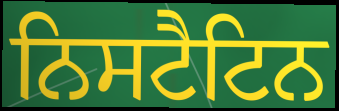
ਨਿਸਟੈਟਿਨ